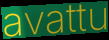
avattu